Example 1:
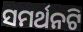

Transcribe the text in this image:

ସମର୍ଥନଟି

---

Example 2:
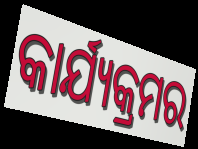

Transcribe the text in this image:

କାର୍ଯ୍ୟକ୍ରମର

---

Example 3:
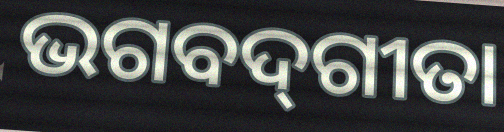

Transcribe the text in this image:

ଭଗବଦ୍‍ଗୀତା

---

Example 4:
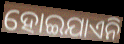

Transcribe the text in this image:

ହୋଇଯାଏନି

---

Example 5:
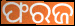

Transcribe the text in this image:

ଫରଜ